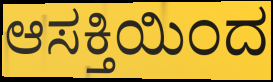
ಆಸಕ್ತಿಯಿಂದ